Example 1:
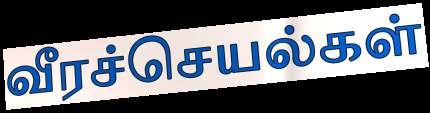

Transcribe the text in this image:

வீரச்செயல்கள்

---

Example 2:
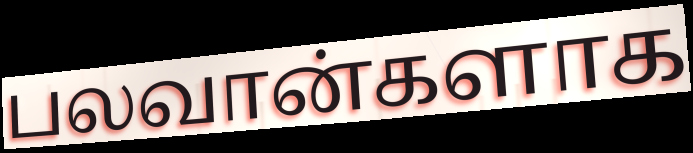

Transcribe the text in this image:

பலவான்களாக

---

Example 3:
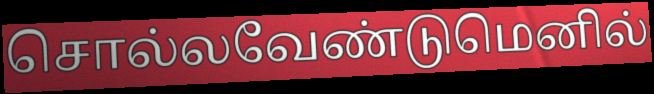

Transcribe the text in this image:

சொல்லவேண்டுமெனில்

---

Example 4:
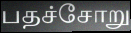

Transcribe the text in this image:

பதச்சோறு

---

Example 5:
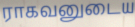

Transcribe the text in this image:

ராகவனுடைய